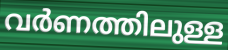
വർണത്തിലുള്ള